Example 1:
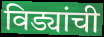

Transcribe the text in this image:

विड्यांची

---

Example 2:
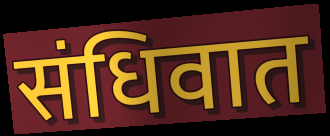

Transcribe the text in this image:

संधिवात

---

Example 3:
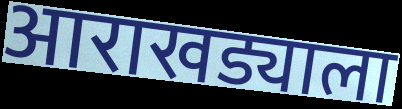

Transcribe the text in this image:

आराखड्याला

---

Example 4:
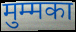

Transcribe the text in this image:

मुम्मका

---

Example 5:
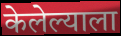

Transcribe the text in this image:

केलेल्याला